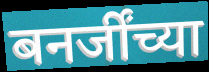
बनर्जींच्या